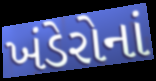
ખંડેરોનાં